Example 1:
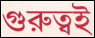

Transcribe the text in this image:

গুরুত্বই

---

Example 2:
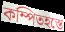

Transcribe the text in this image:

কম্পিতহস্তে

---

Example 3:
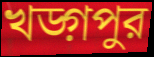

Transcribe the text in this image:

খড়্গপুর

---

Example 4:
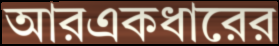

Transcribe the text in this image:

আরএকধারের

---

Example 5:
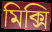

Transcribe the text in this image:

মিক্সি